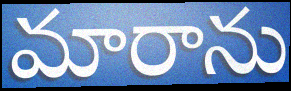
మారాను